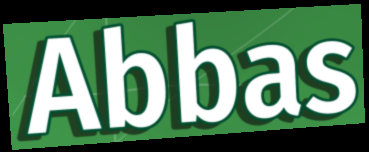
Abbas